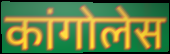
कांगोलेस